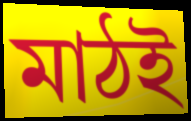
মাঠই